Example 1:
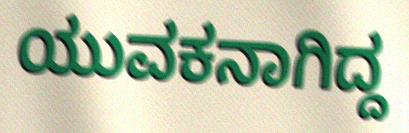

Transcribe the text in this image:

ಯುವಕನಾಗಿದ್ದ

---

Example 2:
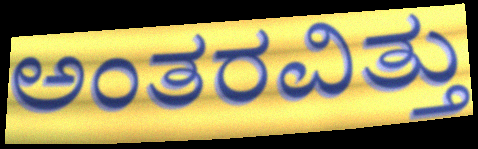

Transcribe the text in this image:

ಅಂತರವಿತ್ತು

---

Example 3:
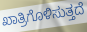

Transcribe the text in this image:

ಖಾತ್ರಿಗೊಳಿಸುತ್ತದೆ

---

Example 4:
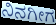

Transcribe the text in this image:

ನಿನಗೀಗ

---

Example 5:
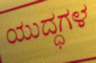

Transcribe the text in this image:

ಯುದ್ಧಗಳ